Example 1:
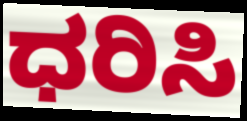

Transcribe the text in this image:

ಧರಿಸಿ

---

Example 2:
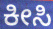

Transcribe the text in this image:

ಕೀಸಿ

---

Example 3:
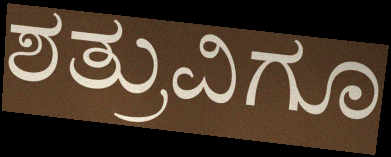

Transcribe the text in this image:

ಶತ್ರುವಿಗೂ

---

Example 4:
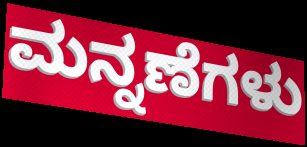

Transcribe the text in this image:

ಮನ್ನಣೆಗಳು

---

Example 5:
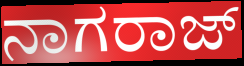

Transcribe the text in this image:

ನಾಗರಾಜ್